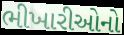
ભીખારીઓનો